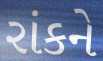
રાંકને